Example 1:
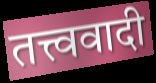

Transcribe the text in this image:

तत्त्ववादी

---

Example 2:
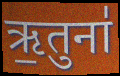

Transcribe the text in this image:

ऋ॒तुना॑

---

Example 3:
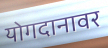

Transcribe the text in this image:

योगदानावर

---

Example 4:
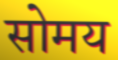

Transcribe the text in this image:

सोमय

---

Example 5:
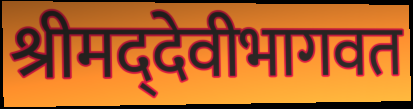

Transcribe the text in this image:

श्रीमद्‌देवीभागवत